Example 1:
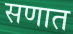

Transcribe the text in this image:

सणात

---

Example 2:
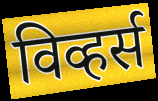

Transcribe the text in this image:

विव्हर्स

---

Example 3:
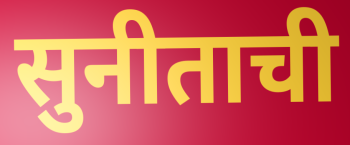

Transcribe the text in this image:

सुनीताची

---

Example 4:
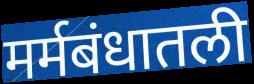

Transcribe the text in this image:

मर्मबंधातली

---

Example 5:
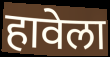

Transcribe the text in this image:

हावेला